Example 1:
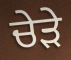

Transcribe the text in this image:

ਚੇੜੇ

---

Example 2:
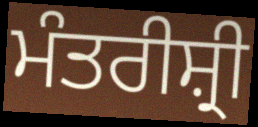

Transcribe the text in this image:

ਮੰਤਰੀਸ਼੍ਰੀ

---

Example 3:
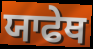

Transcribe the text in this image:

ਯਾਫੇਥ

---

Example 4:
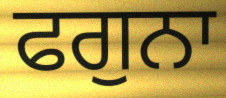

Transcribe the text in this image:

ਫਗੁਨਾ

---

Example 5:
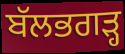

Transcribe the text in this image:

ਬੱਲਭਗੜ੍ਹ